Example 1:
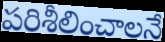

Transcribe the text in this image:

పరిశీలించాలనే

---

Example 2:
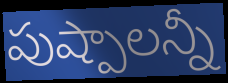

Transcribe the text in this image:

పుష్పాలన్నీ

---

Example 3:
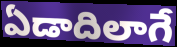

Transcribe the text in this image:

ఏడాదిలాగే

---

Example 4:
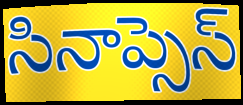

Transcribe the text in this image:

సినాప్సెస్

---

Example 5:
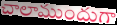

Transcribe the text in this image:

చాలాముందుగా